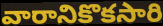
వారానికొకసారి